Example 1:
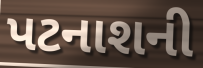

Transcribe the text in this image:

પટનાશની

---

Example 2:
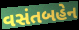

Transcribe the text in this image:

વસંતબહેન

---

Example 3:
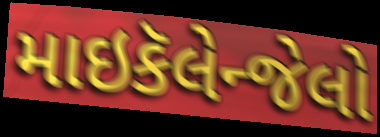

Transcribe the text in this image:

માઇકૅલેન્જેલો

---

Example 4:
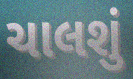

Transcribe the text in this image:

ચાલશું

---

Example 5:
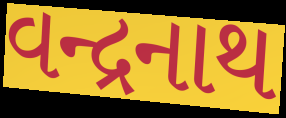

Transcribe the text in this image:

વન્દ્રનાથ